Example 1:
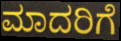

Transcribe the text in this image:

ಮಾದರಿಗೆ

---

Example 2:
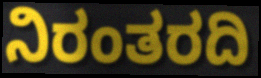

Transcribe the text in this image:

ನಿರಂತರದಿ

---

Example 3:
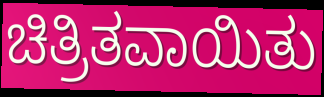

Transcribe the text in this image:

ಚಿತ್ರಿತವಾಯಿತು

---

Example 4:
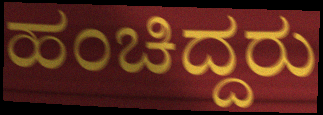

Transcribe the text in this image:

ಹಂಚಿದ್ದರು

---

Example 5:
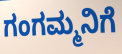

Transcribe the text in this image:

ಗಂಗಮ್ಮನಿಗೆ